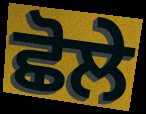
ਛੋਲੇ